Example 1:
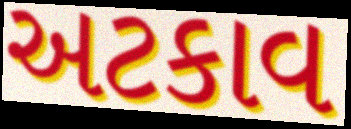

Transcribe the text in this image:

અટકાવ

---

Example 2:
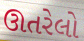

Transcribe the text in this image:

ઊતરેલો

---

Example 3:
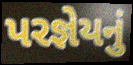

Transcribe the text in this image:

પરજ્ઞેયનું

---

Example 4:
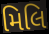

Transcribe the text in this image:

મિલિ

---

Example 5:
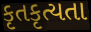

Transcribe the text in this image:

કૃતકૃત્યતા